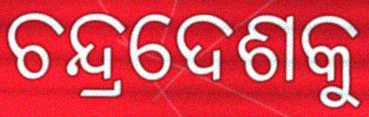
ଚନ୍ଦ୍ରଦେଶକୁ